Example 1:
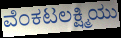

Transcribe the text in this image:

ವೆಂಕಟಲಕ್ಷ್ಮಿಯು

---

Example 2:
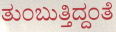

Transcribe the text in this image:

ತುಂಬುತ್ತಿದ್ದಂತೆ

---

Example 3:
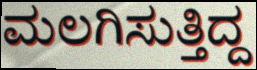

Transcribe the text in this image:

ಮಲಗಿಸುತ್ತಿದ್ದ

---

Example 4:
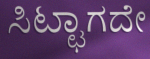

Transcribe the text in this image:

ಸಿಟ್ಟಾಗದೇ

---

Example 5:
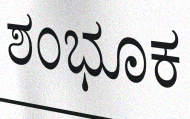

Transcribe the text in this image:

ಶಂಭೂಕ